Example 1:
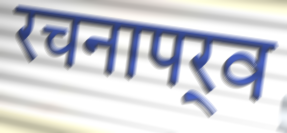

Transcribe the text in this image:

रचनापर्व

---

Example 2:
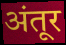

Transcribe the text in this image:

अंतूर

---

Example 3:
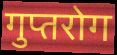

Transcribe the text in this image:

गुप्तरोग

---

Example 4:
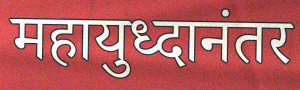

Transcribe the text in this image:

महायुध्दानंतर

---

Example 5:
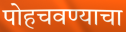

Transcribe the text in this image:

पोहचवण्याचा